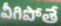
వీగిపోతే